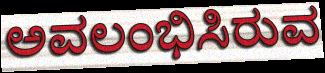
ಅವಲಂಭಿಸಿರುವ